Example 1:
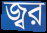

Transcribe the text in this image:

জ্বর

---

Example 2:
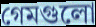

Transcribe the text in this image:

গেমগুলো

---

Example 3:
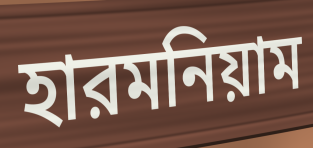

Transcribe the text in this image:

হারমনিয়াম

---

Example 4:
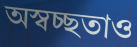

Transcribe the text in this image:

অস্বচ্ছতাও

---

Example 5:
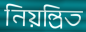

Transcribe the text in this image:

নিয়ন্ত্রিত